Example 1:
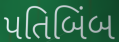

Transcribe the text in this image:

પતિબિંબ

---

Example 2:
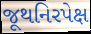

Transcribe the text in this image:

જૂથનિરપેક્ષ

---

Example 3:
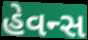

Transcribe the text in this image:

હેવન્સ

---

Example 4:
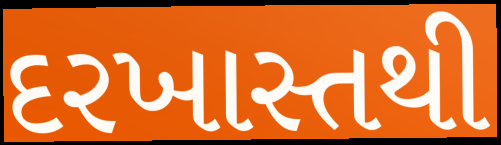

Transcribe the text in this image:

દરખાસ્તથી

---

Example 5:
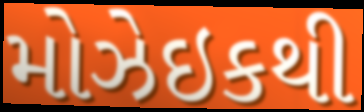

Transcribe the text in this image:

મોઝેઇકથી